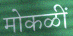
मोकळीं